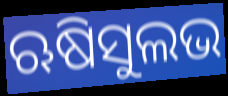
ଋଷିସୁଲଭ